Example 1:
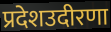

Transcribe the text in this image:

प्रदेशउदीरणा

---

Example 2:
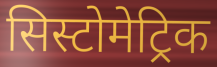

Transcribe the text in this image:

सिस्टोमेट्रिक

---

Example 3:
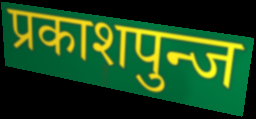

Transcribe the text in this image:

प्रकाशपुन्ज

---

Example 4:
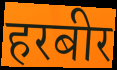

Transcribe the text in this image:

हरबीर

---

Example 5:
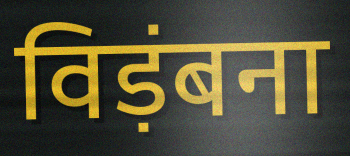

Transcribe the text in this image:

विड़ंबना